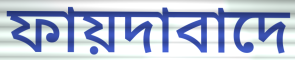
ফায়দাবাদে